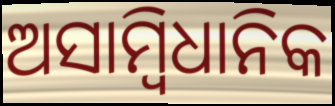
ଅସାମ୍ବିଧାନିକ